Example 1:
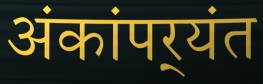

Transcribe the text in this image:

अंकांपर्यंत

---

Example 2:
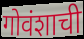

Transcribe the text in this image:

गोवंशाची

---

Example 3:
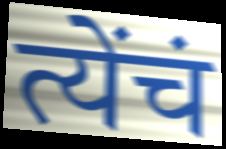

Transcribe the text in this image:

त्येंचं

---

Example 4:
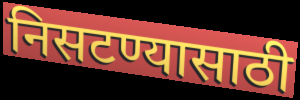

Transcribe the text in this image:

निसटण्यासाठी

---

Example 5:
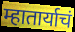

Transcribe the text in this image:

म्हातार्याचं